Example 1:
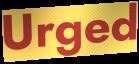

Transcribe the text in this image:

Urged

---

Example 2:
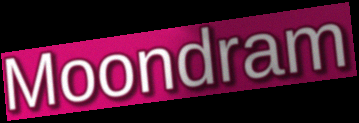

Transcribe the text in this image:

Moondram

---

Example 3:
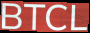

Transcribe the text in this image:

BTCL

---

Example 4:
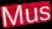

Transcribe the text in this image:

Mus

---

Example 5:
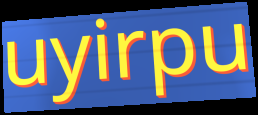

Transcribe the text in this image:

uyirpu